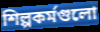
শিল্পকর্মগুলো